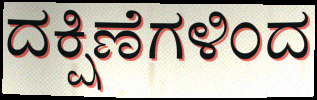
ದಕ್ಷಿಣೆಗಳಿಂದ